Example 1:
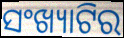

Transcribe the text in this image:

ସଂଖ୍ୟାଟିର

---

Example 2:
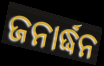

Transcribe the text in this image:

ଜନାର୍ଦ୍ଧନ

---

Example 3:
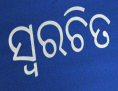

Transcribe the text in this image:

ସ୍ଵରଚିତ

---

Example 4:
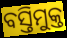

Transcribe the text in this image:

ବସ୍ତିମୁକ୍ତ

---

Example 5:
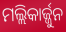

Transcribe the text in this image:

ମଲ୍ଲିକାର୍ଜ୍ଜୁନ